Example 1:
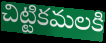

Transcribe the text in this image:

చిట్టికమలకి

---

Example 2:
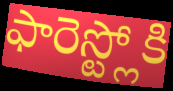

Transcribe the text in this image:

ఫారెస్ట్లోకి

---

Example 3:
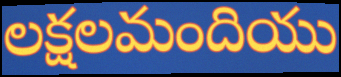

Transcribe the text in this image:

లక్షలమందియు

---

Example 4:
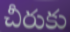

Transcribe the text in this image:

చీరుకు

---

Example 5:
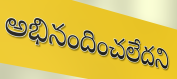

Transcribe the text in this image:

అభినందించలేదని